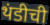
थंडीची